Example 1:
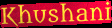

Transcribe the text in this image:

Khushani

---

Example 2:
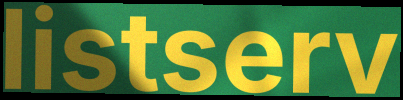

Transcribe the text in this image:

listserv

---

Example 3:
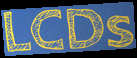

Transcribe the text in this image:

LCDs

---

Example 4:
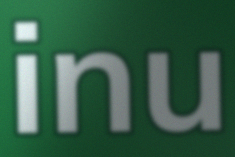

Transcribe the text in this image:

inu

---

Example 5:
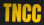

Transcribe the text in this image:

TNCC